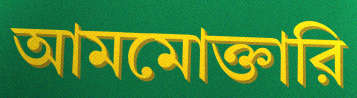
আমমোক্তারি